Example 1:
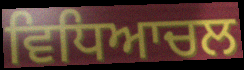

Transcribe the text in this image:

ਵਿਧਿਆਚਲ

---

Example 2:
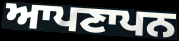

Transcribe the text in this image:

ਆਪਣਾਪਨ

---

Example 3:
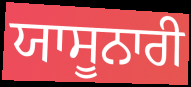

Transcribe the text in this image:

ਯਾਸੂਨਾਰੀ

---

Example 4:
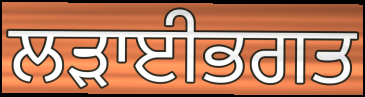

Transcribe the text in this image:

ਲੜਾਈਭਗਤ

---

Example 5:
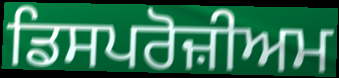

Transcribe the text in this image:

ਡਿਸਪਰੋਜ਼ੀਅਮ